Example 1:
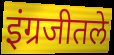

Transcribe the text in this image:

इंग्रजीतले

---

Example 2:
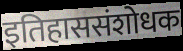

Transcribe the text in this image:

इतिहाससंशोधक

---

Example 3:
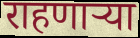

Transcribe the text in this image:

राहणार्‍या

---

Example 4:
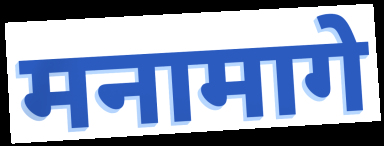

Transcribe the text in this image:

मनामागे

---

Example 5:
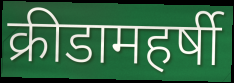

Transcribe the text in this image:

क्रीडामहर्षी